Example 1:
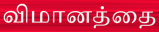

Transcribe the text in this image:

விமானத்தை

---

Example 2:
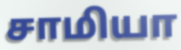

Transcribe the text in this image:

சாமியா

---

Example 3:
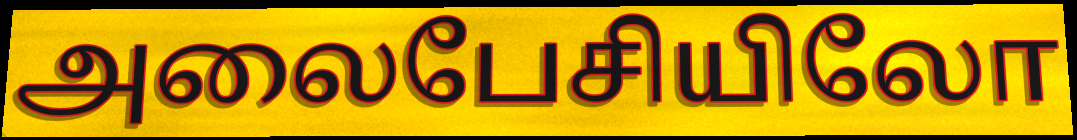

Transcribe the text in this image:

அலைபேசியிலோ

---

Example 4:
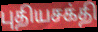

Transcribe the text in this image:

புதியசக்தி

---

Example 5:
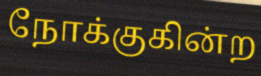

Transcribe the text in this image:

நோக்குகின்ற